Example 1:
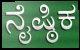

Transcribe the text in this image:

ನೈಷ್ಠಿಕ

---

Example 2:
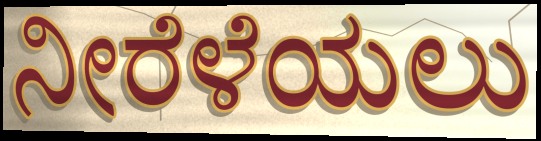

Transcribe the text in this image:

ನೀರೆಳೆಯಲು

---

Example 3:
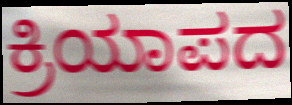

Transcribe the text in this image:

ಕ್ರಿಯಾಪದ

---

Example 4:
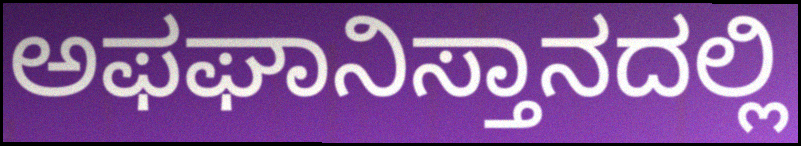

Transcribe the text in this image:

ಅಫಘಾನಿಸ್ತಾನದಲ್ಲಿ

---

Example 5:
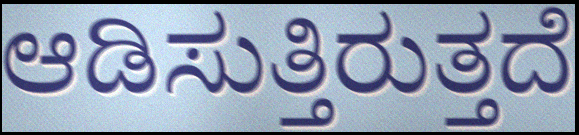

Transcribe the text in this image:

ಆಡಿಸುತ್ತಿರುತ್ತದೆ